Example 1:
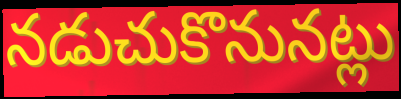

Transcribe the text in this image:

నడుచుకొనునట్లు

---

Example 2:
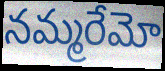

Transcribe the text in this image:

నమ్మరేమో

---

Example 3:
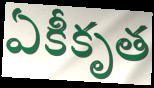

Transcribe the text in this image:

ఏకీకృత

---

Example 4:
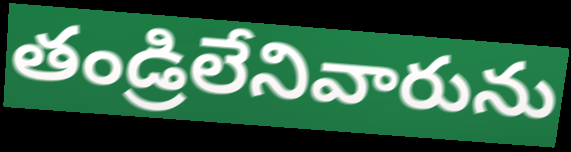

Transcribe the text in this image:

తండ్రిలేనివారును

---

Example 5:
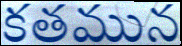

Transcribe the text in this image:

కతమున